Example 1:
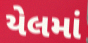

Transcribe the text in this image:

યેલમાં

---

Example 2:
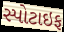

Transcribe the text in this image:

સ્પોટાઇફ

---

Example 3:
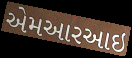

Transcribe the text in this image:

એમઆરઆઇ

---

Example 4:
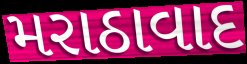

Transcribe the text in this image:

મરાઠાવાદ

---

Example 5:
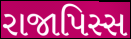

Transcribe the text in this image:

રાજાપિસ્સ